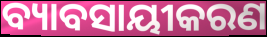
ବ୍ୟାବସାୟୀକରଣ